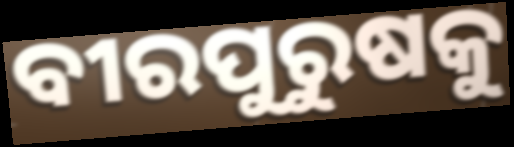
ବୀରପୁରୁଷକୁ